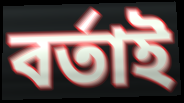
বৰ্তাই